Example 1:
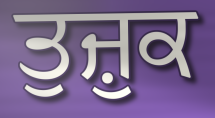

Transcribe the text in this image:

ਤੁਜ਼ੁਕ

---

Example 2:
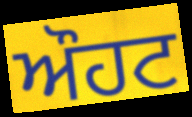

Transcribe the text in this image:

ਔਹਟ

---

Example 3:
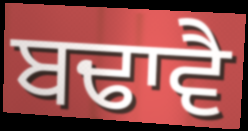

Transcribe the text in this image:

ਬਢਾਵੈ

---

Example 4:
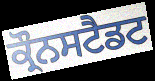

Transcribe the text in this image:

ਕ੍ਰੌਨਸਟੈਡਟ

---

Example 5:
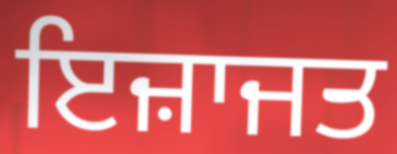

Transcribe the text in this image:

ਇਜ਼ਾਜਤ